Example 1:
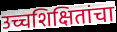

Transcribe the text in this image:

उच्चशिक्षितांचा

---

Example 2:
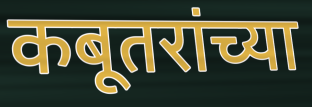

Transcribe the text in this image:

कबूतरांच्या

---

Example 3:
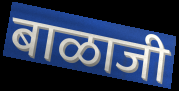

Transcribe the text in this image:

बाळाजी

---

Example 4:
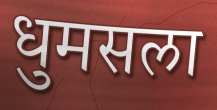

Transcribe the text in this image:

धुमसला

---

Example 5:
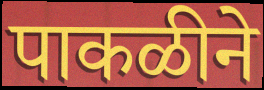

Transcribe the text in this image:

पाकळीने